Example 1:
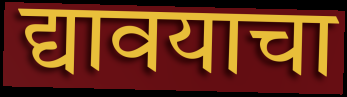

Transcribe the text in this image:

द्यावयाचा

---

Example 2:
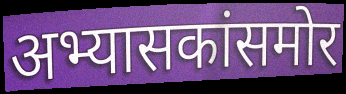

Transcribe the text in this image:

अभ्यासकांसमोर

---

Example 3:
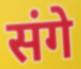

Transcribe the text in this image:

संगे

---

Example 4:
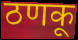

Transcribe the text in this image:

ठणकू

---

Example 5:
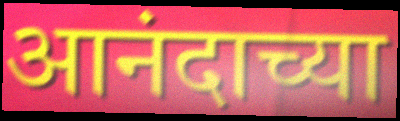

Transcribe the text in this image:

आनंदाच्या